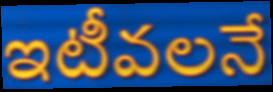
ఇటీవలనే